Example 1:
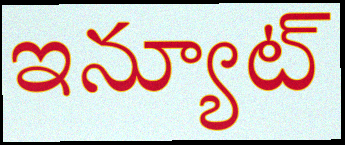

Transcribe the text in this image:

ఇన్యూట్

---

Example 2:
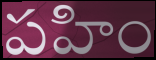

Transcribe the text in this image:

పహిం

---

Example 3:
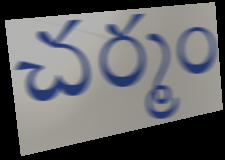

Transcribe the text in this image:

చర్మం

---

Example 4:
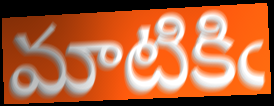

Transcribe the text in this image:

మాటికిఁ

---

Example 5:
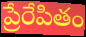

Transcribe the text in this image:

ప్రేరేపితం